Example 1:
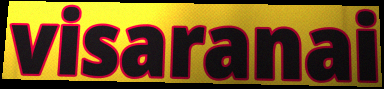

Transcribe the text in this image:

visaranai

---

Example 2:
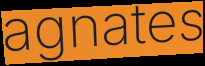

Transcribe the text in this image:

agnates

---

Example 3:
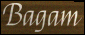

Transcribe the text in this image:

Bagam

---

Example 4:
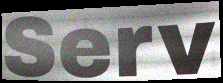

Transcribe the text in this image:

Serv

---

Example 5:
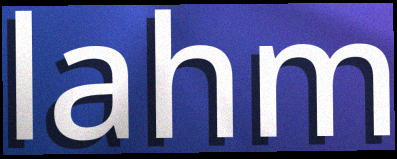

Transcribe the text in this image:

lahm